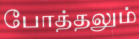
போத்தலும்